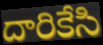
దారికేసి